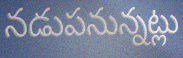
నడుపనున్నట్లు